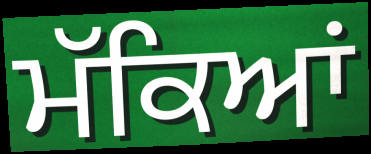
ਮੱਕਿਆਂ